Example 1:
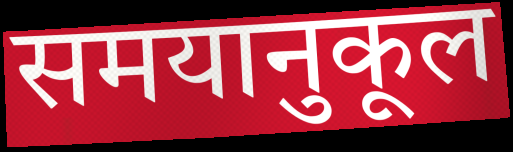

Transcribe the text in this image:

समयानुकूल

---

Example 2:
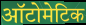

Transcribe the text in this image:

ऑटोमेटिक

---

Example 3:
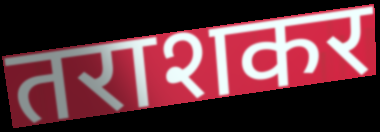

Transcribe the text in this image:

तराशकर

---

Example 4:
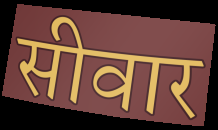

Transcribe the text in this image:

सीवार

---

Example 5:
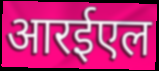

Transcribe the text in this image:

आरईएल